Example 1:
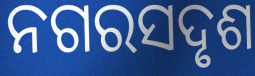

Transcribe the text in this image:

ନଗରସଦୃଶ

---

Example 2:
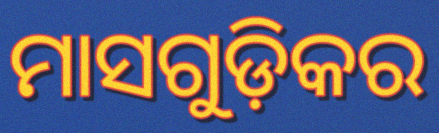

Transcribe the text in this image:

ମାସଗୁଡ଼ିକର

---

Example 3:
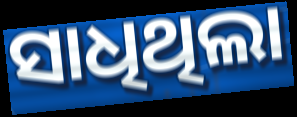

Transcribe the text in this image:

ସାଧିଥିଲା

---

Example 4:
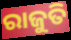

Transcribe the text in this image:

ରାଜୁତି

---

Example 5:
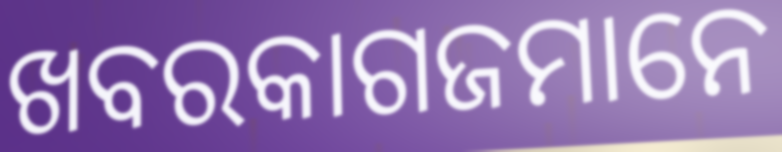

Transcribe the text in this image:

ଖବରକାଗଜମାନେ